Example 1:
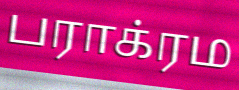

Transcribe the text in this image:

பராக்ரம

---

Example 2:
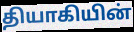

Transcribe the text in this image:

தியாகியின்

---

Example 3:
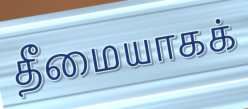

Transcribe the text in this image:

தீமையாகக்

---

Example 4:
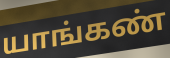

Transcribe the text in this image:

யாங்கண்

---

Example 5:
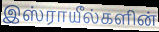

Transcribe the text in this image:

இஸ்ராயீல்களின்